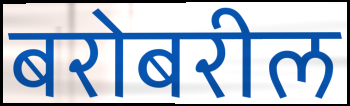
बरोबरील